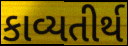
કાવ્યતીર્થ